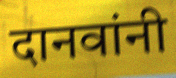
दानवांनी